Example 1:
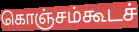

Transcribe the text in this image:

கொஞ்சம்கூடச்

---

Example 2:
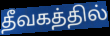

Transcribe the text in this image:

தீவகத்தில்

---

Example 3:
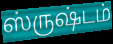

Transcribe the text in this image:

ஸ்ருஷ்டம்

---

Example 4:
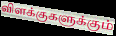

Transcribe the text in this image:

விளக்குகளுக்கும்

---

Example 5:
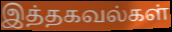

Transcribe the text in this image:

இத்தகவல்கள்